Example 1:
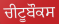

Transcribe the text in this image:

ਚੀਟੂਬੌਕਸ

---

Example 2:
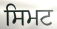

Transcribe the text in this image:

ਸਿਮਟ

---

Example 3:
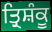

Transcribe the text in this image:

ਤ੍ਰਿਸ਼ੰਕੂ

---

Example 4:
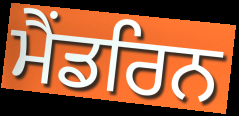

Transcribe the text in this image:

ਮੈਂਡਰਿਨ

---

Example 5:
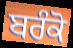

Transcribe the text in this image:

ਬਰੰਕੋ